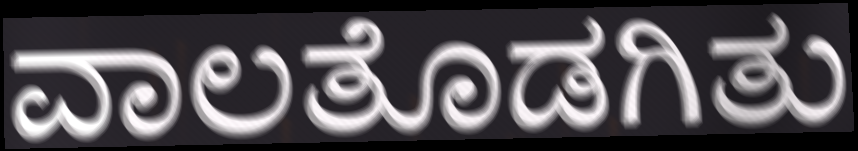
ವಾಲತೊಡಗಿತು